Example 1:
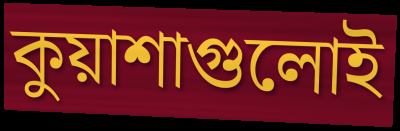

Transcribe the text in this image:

কুয়াশাগুলোই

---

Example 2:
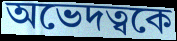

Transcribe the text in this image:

অভেদত্বকে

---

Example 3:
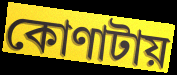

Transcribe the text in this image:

কোণাটায়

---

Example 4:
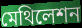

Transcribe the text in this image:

মেথিলেশন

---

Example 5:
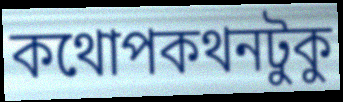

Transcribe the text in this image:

কথোপকথনটুকু